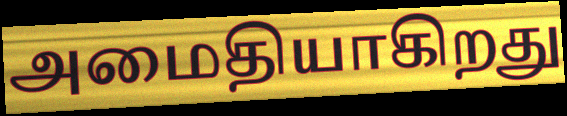
அமைதியாகிறது